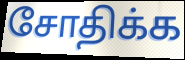
சோதிக்க